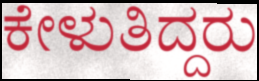
ಕೇಳುತಿದ್ದರು